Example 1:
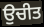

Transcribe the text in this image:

ਉਚੀਤ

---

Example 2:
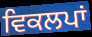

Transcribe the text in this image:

ਵਿਕਲਪਾਂ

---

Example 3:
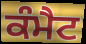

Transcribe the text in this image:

ਕੰਮੈਟ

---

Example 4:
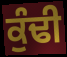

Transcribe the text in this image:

ਕੁੰਢੀ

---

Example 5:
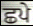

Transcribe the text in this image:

ਛਪੇ